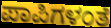
ಪಾಪಿಗಳಂತೆ